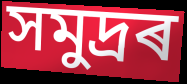
সমুদ্ৰৰ